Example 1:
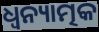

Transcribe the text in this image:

ଧ୍ୱନ୍ୟାତ୍ମକ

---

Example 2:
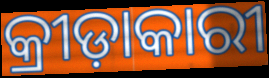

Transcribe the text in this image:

କ୍ରୀଡ଼ାକାରୀ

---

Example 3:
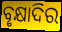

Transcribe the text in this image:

ବୃକ୍ଷାଦିର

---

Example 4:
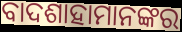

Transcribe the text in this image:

ବାଦଶାହାମାନଙ୍କର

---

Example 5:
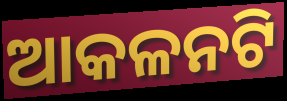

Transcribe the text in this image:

ଆକଳନଟି